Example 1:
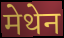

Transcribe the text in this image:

मेथेन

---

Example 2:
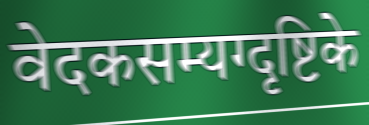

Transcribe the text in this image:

वेदकसम्यग्दृष्टिके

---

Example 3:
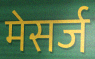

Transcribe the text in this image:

मेसर्ज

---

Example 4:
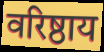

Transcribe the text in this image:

वरिष्ठाय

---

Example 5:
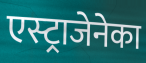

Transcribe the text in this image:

एस्‍ट्राजेनेका